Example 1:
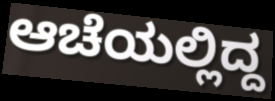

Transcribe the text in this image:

ಆಚೆಯಲ್ಲಿದ್ದ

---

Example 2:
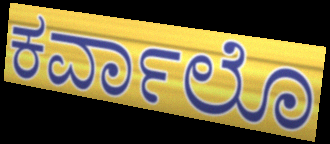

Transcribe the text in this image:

ಕರ್ವಾಲೊ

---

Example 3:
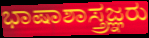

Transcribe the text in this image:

ಭಾಷಾಶಾಸ್ತ್ರಜ್ಞರು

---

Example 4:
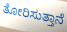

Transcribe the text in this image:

ತೋರಿಸುತ್ತಾನೆ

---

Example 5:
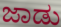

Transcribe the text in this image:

ಜಾಡು